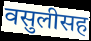
वसुलीसह